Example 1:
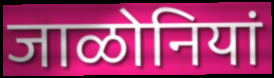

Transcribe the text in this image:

जाळोनियां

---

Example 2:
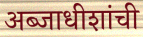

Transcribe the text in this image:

अब्जाधीशांची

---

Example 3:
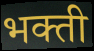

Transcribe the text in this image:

भक्ती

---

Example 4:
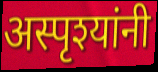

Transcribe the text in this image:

अस्पृश्यांनी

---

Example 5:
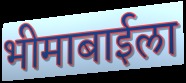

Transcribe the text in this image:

भीमाबाईला